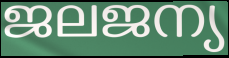
ജലജന്യ